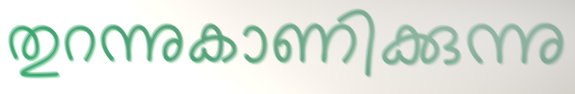
തുറന്നുകാണിക്കുന്നു